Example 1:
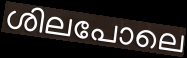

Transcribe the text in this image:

ശിലപോലെ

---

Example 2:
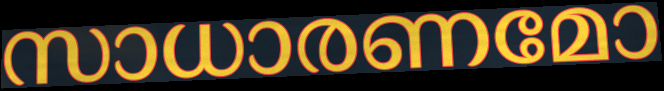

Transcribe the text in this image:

സാധാരണമോ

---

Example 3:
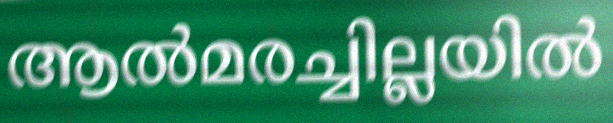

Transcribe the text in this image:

ആൽമരച്ചില്ലയിൽ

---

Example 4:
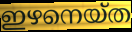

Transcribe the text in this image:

ഇഴനെയ്ത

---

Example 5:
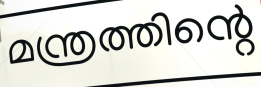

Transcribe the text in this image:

മന്ത്രത്തിന്റെ